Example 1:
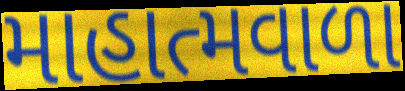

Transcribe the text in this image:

માહાત્મવાળા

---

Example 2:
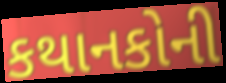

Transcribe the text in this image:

કથાનકોની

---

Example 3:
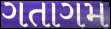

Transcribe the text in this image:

ગતાગમ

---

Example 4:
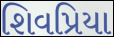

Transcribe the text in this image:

શિવપ્રિયા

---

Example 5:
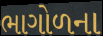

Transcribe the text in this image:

ભાગોળના